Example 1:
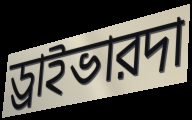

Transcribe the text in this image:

ড্রাইভারদা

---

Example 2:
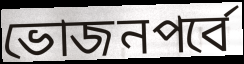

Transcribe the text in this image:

ভোজনপর্বে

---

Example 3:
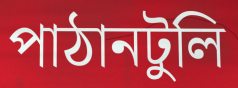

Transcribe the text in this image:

পাঠানটুলি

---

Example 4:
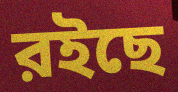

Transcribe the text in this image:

রইছে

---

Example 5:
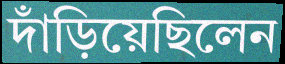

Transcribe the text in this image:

দাঁড়িয়েছিলেন